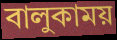
বালুকাময়